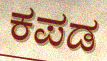
ಕಪಡ